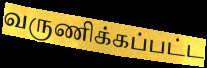
வருணிக்கப்பட்ட